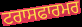
ਟਰਾਸਫਾਰਮਰ